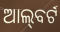
ଆଲ୍‌ବର୍ଟ